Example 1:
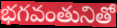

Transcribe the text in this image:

భగవంతునితో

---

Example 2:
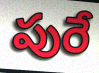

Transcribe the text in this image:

పురే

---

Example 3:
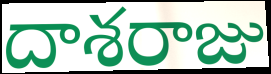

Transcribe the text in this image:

దాశరాజు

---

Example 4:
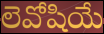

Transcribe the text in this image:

లెవోషియే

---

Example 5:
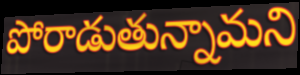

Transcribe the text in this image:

పోరాడుతున్నామని